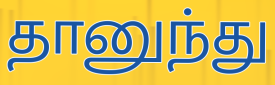
தானுந்து